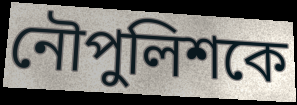
নৌপুলিশকে